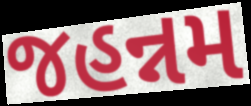
જહન્નમ